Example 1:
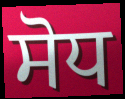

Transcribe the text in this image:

ਸੋਧ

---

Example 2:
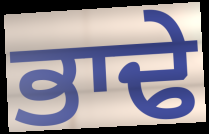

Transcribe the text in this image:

ਭਾਢੇ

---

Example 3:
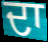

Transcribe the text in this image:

ਦਾ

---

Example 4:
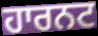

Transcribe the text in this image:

ਹਾਰਨਟ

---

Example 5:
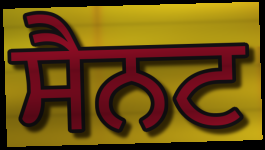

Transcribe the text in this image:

ਸੈਨਟ